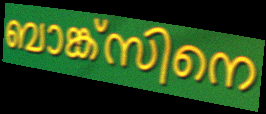
ബാങ്ക്സിനെ